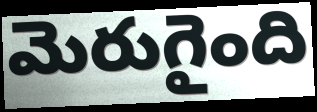
మెరుగైంది